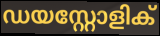
ഡയസ്റ്റോളിക്